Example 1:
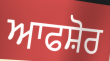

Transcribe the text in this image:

ਆਫਸ਼ੋਰ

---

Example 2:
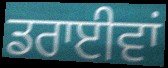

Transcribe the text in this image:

ਡਰਾਈਵਾਂ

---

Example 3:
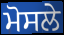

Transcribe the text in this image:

ਮੋਸਲੇ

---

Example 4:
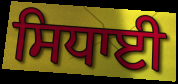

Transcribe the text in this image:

ਸਿਧਾਈ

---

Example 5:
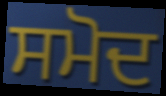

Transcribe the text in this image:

ਸਮੋਦ